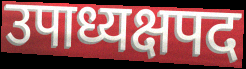
उपाध्यक्षपद